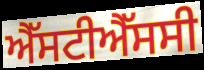
ਐੱਸਟੀਐੱਸਸੀ